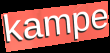
kampe